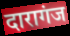
दारागंज